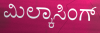
ಮಿಲ್ಕಾಸಿಂಗ್